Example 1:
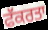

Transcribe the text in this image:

ਫੱਕਰਤਾ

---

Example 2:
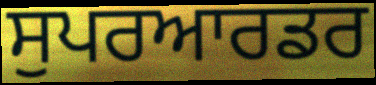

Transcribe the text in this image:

ਸੁਪਰਆਰਡਰ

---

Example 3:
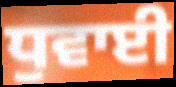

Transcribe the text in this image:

ਧੁਵਾਈ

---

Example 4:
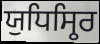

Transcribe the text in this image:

ਯੁਧਿਸ੍ਠਿਰ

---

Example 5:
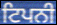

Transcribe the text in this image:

ਟਿਪਨੀ